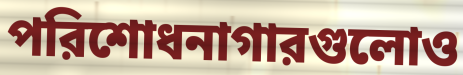
পরিশোধনাগারগুলোও